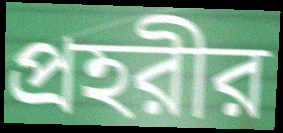
প্রহরীর